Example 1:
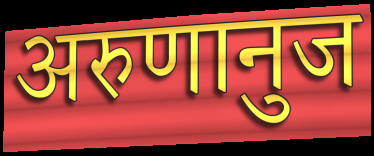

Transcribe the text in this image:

अरुणानुज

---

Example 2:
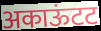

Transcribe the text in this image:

अकाऊंटट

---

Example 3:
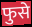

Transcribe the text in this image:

फुसे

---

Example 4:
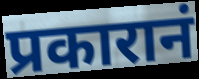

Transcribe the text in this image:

प्रकारानं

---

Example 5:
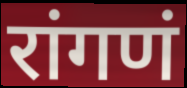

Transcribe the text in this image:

रांगणं